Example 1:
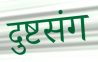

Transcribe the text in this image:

दुष्टसंग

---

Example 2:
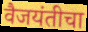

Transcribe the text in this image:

वैजयंतीचा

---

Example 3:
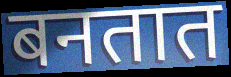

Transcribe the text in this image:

बनतात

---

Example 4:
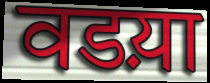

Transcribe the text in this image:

वडय़ा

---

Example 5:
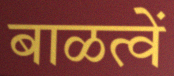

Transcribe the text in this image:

बाळत्वें